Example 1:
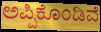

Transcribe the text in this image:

ಅಪ್ಪಿಕೊಂಡಿವೆ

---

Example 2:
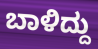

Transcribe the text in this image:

ಬಾಳಿದ್ದು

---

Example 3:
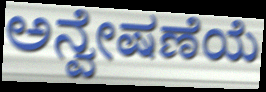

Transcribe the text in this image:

ಅನ್ವೇಷಣೆಯೆ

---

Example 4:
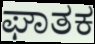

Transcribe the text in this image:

ಘಾತಕ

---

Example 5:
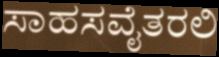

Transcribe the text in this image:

ಸಾಹಸವೈತರಲಿ